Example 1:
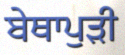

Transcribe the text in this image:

ਬੇਥਾਪੁੜੀ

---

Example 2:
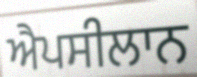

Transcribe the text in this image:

ਐਪਸੀਲਾਨ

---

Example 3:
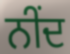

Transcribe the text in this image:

ਨੀਂਦ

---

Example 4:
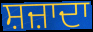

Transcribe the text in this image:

ਸ਼ਜ਼ਾਦਾ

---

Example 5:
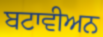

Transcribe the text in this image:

ਬਟਾਵੀਅਨ